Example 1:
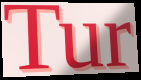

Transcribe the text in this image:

Tur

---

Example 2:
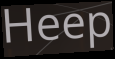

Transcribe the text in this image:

Heep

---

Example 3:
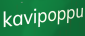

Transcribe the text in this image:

kavipoppu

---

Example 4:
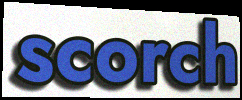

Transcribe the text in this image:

scorch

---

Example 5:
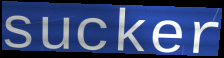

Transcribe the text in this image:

sucker